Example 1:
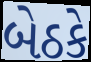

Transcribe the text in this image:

બેઠકે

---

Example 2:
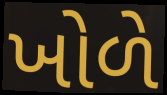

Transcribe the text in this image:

ખોળે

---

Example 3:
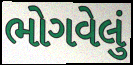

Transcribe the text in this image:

ભોગવેલું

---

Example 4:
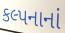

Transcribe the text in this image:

કલ્પનાનાં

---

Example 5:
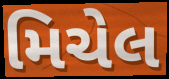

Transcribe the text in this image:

મિચેલ